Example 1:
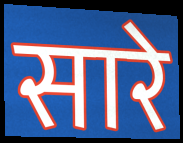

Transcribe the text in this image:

सारे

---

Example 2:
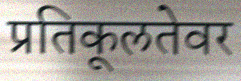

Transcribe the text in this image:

प्रतिकूलतेवर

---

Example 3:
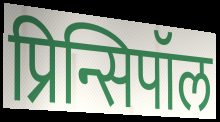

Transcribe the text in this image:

प्रिन्सिपॉल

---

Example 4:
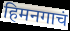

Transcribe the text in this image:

हिमनगाचं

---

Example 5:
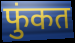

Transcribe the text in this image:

फुंकत